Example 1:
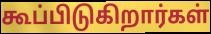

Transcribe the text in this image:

கூப்பிடுகிறார்கள்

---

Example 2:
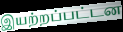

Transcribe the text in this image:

இயற்றப்பட்டன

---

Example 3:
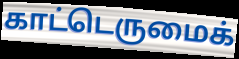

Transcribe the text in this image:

காட்டெருமைக்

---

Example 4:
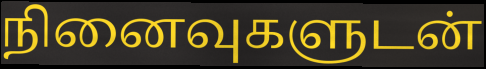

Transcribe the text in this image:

நினைவுகளுடன்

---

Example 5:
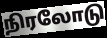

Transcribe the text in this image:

நிரலோடு